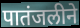
पातंजलीने